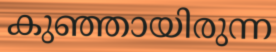
കുഞ്ഞായിരുന്ന